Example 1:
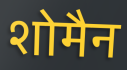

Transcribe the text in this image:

शोमैन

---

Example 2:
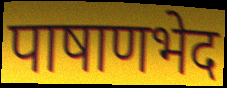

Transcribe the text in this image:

पाषाणभेद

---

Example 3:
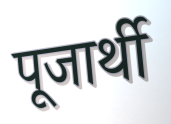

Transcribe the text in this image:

पूजार्थी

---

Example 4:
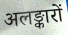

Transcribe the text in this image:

अलङ्कारों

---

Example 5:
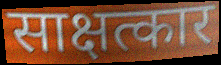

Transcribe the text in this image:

साक्षत्कार